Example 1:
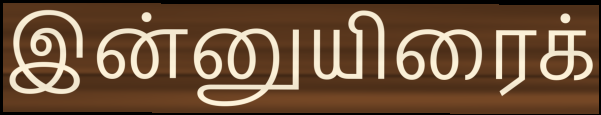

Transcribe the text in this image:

இன்னுயிரைக்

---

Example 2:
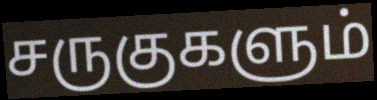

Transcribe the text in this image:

சருகுகளும்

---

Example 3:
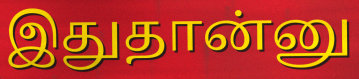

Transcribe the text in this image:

இதுதான்னு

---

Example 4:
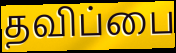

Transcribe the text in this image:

தவிப்பை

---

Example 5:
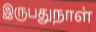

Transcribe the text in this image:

இருபதுநாள்